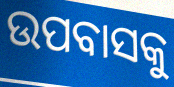
ଉପବାସକୁ